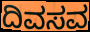
ದಿವಸವ